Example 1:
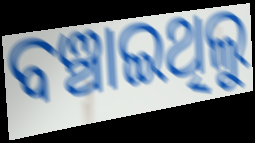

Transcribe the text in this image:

ବଞ୍ଚାଇଥିଲୁ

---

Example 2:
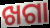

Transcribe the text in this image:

ଖଗା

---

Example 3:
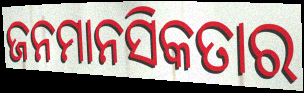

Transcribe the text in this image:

ଜନମାନସିକତାର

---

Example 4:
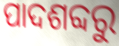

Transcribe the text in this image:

ପାଦଶବ୍ଦରୁ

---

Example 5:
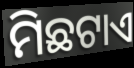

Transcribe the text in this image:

ମିଛଟାଏ